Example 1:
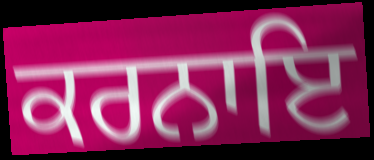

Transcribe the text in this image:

ਕਰਨਾਇ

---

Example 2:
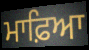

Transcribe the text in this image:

ਮਾਫ਼ਿਆ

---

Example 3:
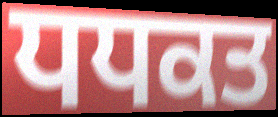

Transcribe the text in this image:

ਧਧਕਤ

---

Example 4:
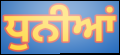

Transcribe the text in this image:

ਧੁਨੀਆਂ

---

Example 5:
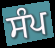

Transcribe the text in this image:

ਸੰਪ